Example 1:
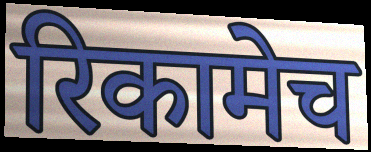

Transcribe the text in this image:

रिकामेच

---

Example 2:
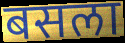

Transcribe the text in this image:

बसला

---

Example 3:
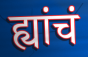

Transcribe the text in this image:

ह्यांचं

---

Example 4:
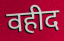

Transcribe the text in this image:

वहीद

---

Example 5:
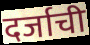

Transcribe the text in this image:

दर्जाची